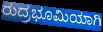
ರುದ್ರಭೂಮಿಯಾಗಿ